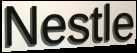
Nestle